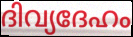
ദിവ്യദേഹം